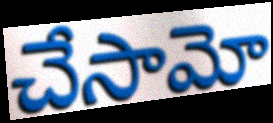
చేసామో